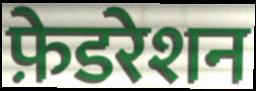
फ़ेडरेशन